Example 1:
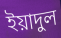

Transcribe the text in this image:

ইয়াদুল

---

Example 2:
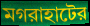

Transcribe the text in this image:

মগরাহাটের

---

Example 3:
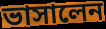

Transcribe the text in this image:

ভাসালেন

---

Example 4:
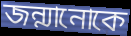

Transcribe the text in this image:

জন্মানোকে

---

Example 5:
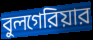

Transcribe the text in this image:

বুলগেরিয়ার